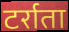
टर्राता